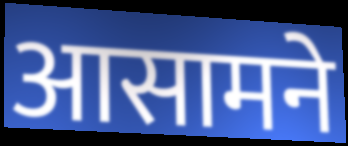
आसामने